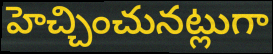
హెచ్చించునట్లుగా